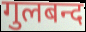
गुलबन्द